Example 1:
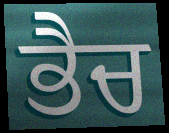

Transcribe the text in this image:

ਭੈਚ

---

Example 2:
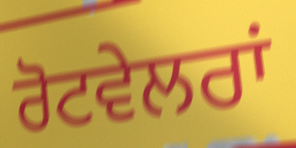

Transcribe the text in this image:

ਰੋਟਵੇਲਰਾਂ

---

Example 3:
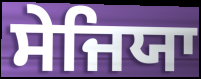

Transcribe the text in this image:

ਸੇਜਿਯਾ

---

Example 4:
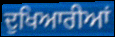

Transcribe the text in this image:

ਦੁਖਿਆਰੀਆਂ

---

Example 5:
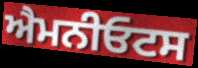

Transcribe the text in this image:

ਐਮਨੀਓਟਸ